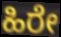
ಹಿರೇ